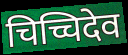
चिच्चिदेव